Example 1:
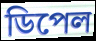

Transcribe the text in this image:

ডিপেল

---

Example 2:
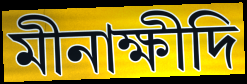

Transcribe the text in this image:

মীনাক্ষীদি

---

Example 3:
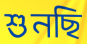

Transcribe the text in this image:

শুনছি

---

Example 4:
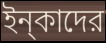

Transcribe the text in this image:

ইন্‌কাদের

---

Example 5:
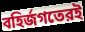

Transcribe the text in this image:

বহির্জগতেরই